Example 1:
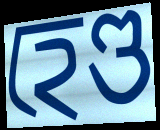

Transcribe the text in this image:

হেণ্ড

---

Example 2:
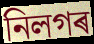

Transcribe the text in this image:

নিলগৰ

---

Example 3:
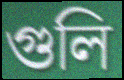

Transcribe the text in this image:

গুলি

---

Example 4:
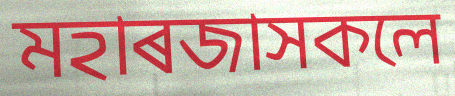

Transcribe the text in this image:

মহাৰজাসকলে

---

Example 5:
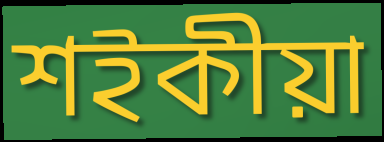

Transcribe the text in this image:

শইকীয়া